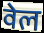
वेल